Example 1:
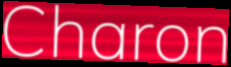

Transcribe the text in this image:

Charon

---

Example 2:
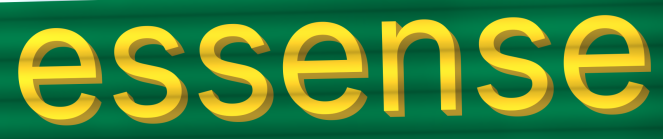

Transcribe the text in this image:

essense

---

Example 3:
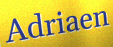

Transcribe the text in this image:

Adriaen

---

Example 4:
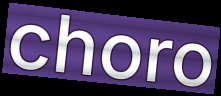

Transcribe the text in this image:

choro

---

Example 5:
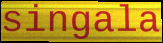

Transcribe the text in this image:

singala